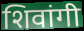
शिवांगी